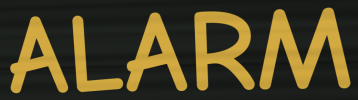
ALARM